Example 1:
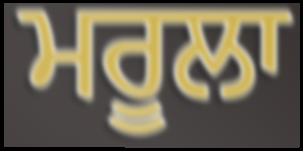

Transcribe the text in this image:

ਮਰੂਲਾ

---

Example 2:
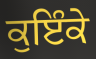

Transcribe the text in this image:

ਕੁਇੰਕੇ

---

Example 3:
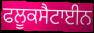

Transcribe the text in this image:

ਫਲੂਕਸੈਟਾਈਨ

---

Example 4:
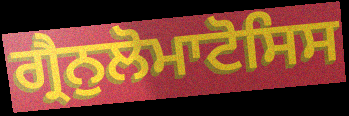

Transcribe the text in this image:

ਗ੍ਰੈਨੁਲੋਮਾਟੋਸਿਸ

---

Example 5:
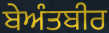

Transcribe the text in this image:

ਬੇਅੰਤਬੀਰ